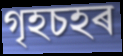
গৃহচহৰ